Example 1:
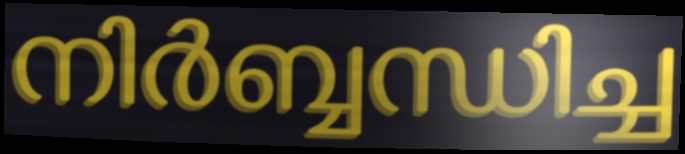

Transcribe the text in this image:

നിർബ്ബന്ധിച്ച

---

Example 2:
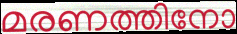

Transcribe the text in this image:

മരണത്തിനോ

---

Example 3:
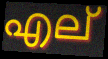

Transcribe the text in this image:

എല്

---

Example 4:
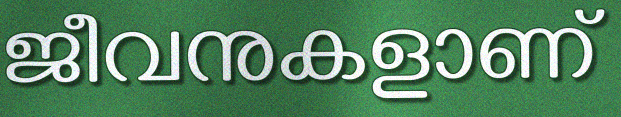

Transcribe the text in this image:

ജീവനുകളാണ്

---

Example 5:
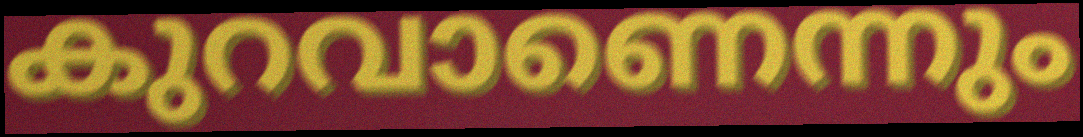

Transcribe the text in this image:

കുറവാണെന്നും